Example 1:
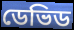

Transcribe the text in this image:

ডেভিড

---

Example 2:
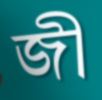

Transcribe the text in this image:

জী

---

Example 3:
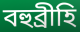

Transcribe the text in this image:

বহুব্ৰীহি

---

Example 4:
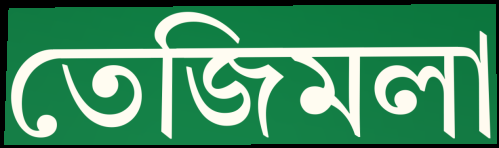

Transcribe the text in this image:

তেজিমলা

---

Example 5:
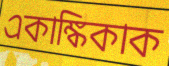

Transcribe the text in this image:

একাঙ্কিকাক